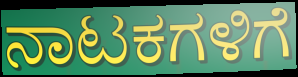
ನಾಟಕಗಳಿಗೆ